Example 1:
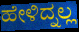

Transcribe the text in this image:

ಹೇಳಿದ್ನಲ್ಲ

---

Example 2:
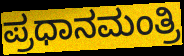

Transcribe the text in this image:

ಪ್ರಧಾನಮಂತ್ರಿ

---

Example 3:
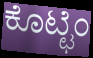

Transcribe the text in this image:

ಕೊಟ್ಟೆಂ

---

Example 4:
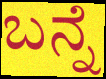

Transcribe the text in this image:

ಬನ್ನೆ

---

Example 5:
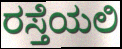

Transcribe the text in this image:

ರಸ್ತೆಯಲಿ